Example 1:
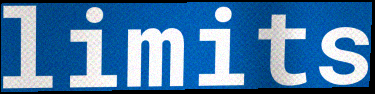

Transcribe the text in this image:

limits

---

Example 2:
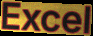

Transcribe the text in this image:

Excel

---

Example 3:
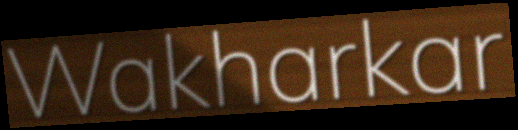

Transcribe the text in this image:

Wakharkar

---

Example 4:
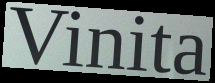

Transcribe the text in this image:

Vinita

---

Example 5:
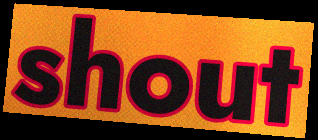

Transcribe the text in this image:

shout